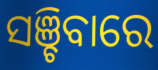
ସଞ୍ଚିବାରେ